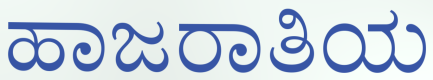
ಹಾಜರಾತಿಯ